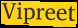
Vipreet